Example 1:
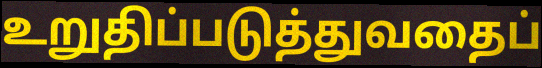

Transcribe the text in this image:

உறுதிப்படுத்துவதைப்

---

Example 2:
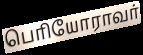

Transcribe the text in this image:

பெரியோராவர்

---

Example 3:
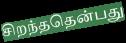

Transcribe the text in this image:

சிறந்ததென்பது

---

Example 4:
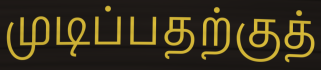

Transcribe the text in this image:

முடிப்பதற்குத்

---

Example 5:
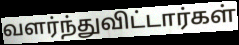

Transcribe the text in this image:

வளர்ந்துவிட்டார்கள்